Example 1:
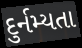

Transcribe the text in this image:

દુર્નમ્યતા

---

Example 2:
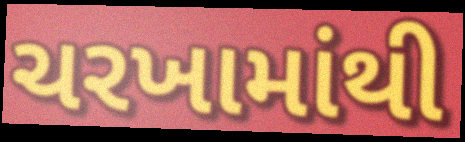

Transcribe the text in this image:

ચરખામાંથી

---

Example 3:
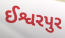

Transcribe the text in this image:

ઈશ્વરપુર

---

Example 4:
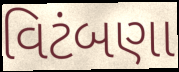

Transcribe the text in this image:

વિટંબણા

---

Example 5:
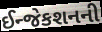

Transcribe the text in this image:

ઈન્જેકશનની